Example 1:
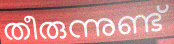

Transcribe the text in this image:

തീരുന്നുണ്ട്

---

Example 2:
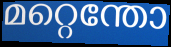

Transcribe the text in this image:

മറ്റെന്തോ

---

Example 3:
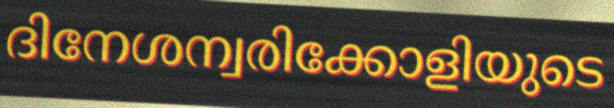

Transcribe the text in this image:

ദിനേശന്വരിക്കോളിയുടെ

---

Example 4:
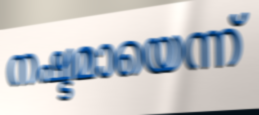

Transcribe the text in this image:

നഷ്ടമായെന്ന്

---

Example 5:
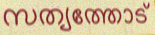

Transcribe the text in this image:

സത്യത്തോട്